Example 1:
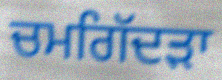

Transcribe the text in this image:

ਚਮਗਿੱਦੜਾ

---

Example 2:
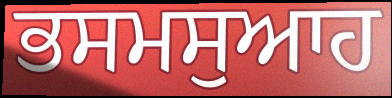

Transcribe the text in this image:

ਭਸਮਸੁਆਹ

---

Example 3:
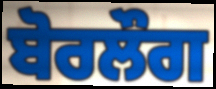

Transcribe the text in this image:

ਬੋਰਲੌਗ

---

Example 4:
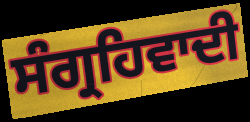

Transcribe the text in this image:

ਸੰਗ੍ਰਹਿਵਾਦੀ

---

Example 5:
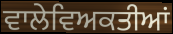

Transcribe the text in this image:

ਵਾਲੇਵਿਅਕਤੀਆਂ